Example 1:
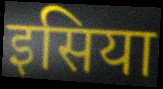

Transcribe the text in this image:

इसिया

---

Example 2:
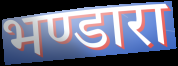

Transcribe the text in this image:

भण्डारा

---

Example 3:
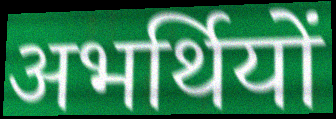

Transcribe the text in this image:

अभर्थियों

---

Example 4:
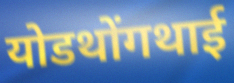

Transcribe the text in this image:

योडथोंगथाई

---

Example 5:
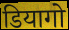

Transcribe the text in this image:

डियागो